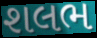
શલભ